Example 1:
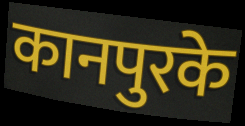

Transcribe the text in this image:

कानपुरके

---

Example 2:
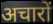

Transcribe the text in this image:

अचारों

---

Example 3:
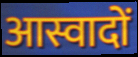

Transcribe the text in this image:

आस्वादों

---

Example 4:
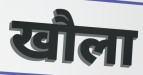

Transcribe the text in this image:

खौला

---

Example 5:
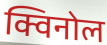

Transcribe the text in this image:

क्विनोल